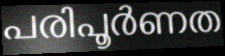
പരിപൂർണത